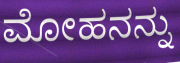
ಮೋಹನನ್ನು